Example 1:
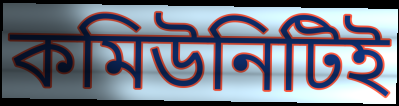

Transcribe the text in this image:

কমিউনিটিই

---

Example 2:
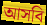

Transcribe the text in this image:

আসবি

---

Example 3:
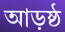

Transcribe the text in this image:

আড়ষ্ঠ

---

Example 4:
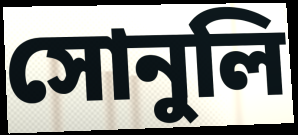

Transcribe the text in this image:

সোনুলি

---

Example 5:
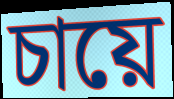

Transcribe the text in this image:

চায়ে